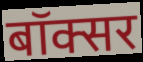
बॉक्सर